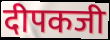
दीपकजी